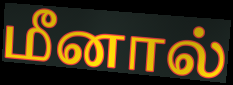
மீனால்